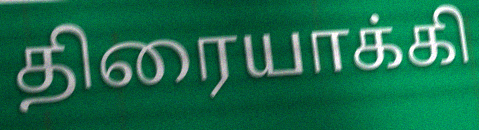
திரையாக்கி